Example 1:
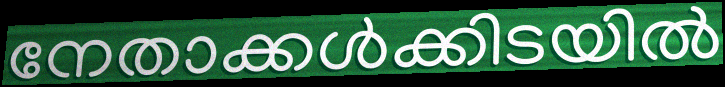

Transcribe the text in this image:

നേതാക്കൾക്കിടയിൽ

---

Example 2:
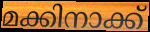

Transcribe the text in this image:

മക്കിനാക്ക്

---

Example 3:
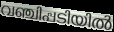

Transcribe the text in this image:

വഞ്ചിപ്പടിയിൽ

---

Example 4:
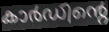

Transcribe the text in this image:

കാർഡിന്റെ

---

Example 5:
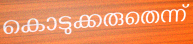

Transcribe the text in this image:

കൊടുക്കരുതെന്ന്